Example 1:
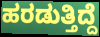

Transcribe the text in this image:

ಹರಡುತ್ತಿದ್ದೆ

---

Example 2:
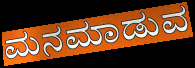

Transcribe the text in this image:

ಮನಮಾಡುವ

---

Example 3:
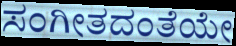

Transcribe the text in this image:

ಸಂಗೀತದಂತೆಯೇ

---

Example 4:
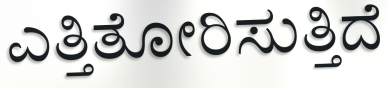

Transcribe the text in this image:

ಎತ್ತಿತೋರಿಸುತ್ತಿದೆ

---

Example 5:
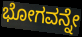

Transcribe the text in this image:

ಭೋಗವನ್ನೇ